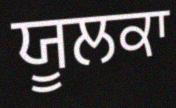
ਯੂਲਕਾ